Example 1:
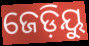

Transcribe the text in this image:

ଜେଡ଼ିୟୁ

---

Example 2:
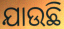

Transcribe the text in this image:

ଯାଉଛି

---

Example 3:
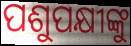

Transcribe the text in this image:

ପଶୁପକ୍ଷୀଙ୍କୁ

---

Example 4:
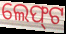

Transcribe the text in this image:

ଲେଫ୍‌ଟ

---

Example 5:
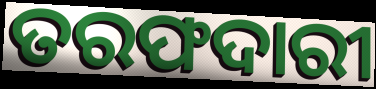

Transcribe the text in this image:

ତରଫଦାରୀ